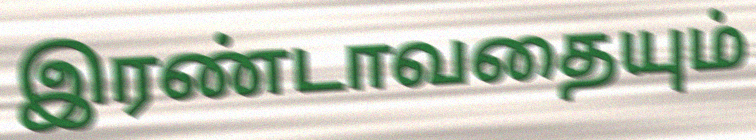
இரண்டாவதையும்